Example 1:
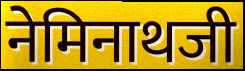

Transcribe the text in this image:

नेमिनाथजी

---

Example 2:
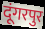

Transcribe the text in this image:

दूंगरपुर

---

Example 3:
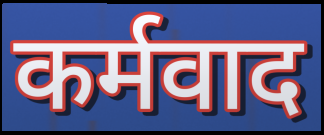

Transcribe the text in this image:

कर्मवाद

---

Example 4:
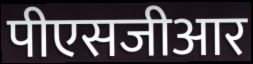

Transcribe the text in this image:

पीएसजीआर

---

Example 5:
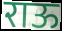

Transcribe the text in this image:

राऊ